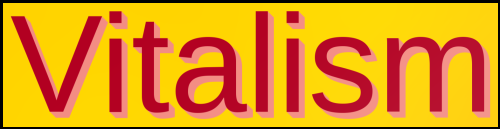
Vitalism